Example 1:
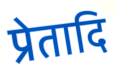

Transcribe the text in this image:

प्रेतादि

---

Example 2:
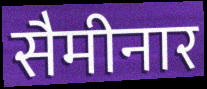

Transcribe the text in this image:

सैमीनार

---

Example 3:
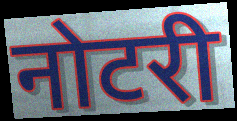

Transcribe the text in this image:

नोटरी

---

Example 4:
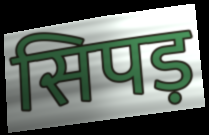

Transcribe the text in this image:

सिपड़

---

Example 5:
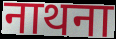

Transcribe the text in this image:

नाथना